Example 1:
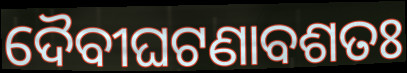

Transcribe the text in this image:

ଦୈବୀଘଟଣାବଶତଃ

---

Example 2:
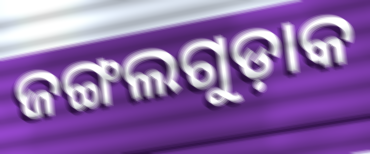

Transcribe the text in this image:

ଜଙ୍ଗଲଗୁଡ଼ାକ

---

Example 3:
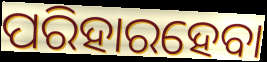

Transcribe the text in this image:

ପରିହାରହେବା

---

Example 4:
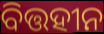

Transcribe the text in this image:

ବିତ୍ତହୀନ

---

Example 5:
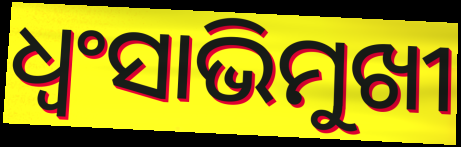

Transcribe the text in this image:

ଧ୍ଵଂସାଭିମୁଖୀ